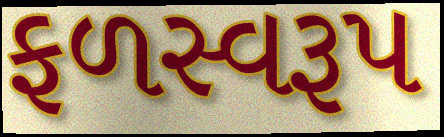
ફળસ્વરૂપ